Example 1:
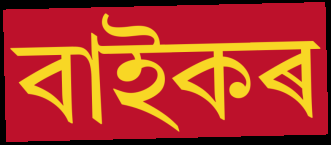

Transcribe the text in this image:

বাইকৰ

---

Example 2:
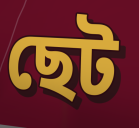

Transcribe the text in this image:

ছেট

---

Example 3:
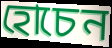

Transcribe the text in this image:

হোচেন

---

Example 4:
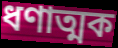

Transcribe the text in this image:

ধণাত্মক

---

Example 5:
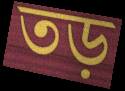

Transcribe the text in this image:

তড়